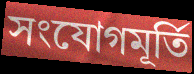
সংযোগমূর্তি